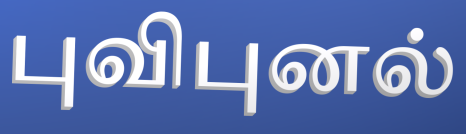
புவிபுனல்